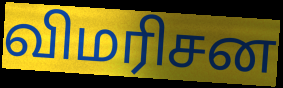
விமரிசன